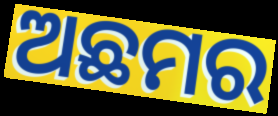
ଅଛମର